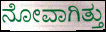
ನೋವಾಗಿತ್ತು